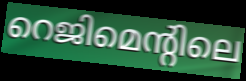
റെജിമെന്റിലെ